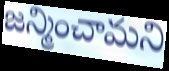
జన్మించామని